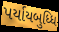
પર્યાયબુધ્ધિ